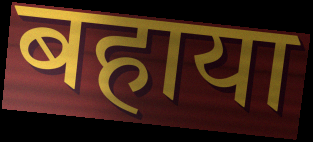
बहाया